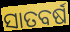
ସାତବର୍ଷ